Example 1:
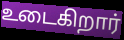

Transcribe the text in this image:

உடைகிறார்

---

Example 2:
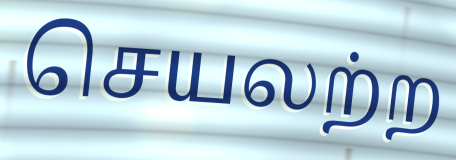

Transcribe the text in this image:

செயலற்ற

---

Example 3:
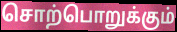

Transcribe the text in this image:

சொற்பொறுக்கும்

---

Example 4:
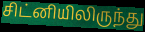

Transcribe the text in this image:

சிட்னியிலிருந்து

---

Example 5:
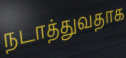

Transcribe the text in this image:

நடாத்துவதாக